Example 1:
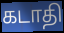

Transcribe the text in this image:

கடாதி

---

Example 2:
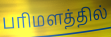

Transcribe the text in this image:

பரிமளத்தில்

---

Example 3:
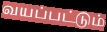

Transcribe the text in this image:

வயப்பட்டும்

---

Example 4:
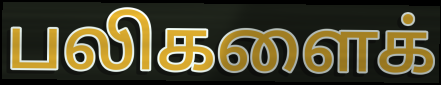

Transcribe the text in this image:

பலிகளைக்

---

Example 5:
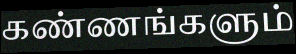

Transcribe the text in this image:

கண்ணங்களும்